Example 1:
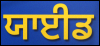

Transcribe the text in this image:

ਯਾਈਡ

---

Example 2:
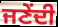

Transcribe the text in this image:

ਜਣੇਂਦੀ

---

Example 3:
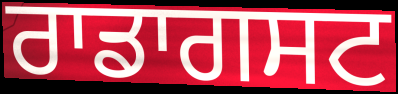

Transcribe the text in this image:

ਰਾਡਾਗਸਟ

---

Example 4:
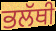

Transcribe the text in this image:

ਭਲੱਥੀ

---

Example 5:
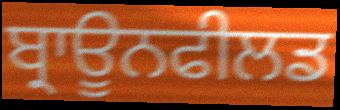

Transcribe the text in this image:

ਬ੍ਰਾਊਨਫੀਲਡ